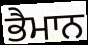
ਭੈਮਾਨ